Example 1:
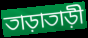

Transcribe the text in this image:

তাড়াতাড়ী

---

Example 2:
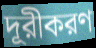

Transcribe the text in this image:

দূরীকরণ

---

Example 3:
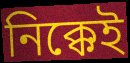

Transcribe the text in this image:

নিক্কেই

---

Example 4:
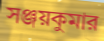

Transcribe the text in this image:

সঞ্জয়কুমার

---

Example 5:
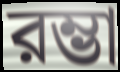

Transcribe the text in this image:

রম্ভা